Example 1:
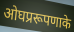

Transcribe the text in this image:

ओघप्ररूपणाके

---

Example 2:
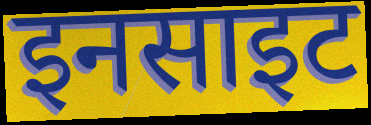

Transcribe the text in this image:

इनसाइट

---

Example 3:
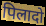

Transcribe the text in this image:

पिलादो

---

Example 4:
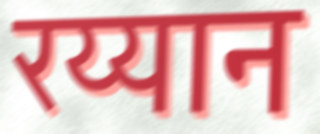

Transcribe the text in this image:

रय्यान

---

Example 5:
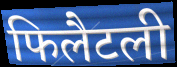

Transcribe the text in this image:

फिलैटली